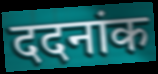
ददनांक